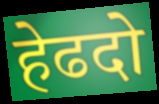
हेढदो